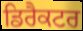
ਡਿਰੈਕਟਰ